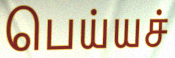
பெய்யச்